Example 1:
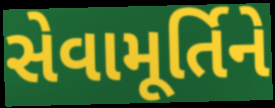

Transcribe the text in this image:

સેવામૂર્તિને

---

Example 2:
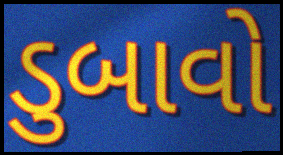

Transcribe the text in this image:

ડુબાવો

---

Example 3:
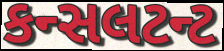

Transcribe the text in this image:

કન્સલટન્ટ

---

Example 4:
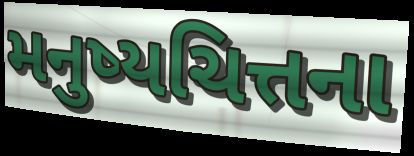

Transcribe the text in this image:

મનુષ્યચિત્તના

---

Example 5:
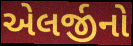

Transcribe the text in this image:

એલર્જીનો